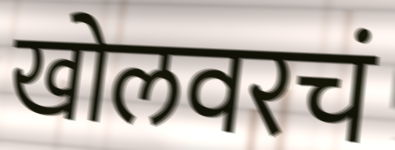
खोलवरचं